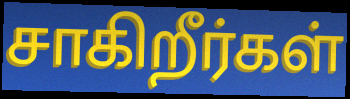
சாகிறீர்கள்